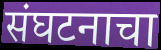
संघटनाचा